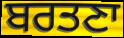
ਬਰਤਣਾ